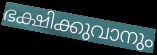
ഭക്ഷിക്കുവാനും